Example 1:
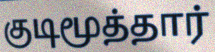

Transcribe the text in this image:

குடிமூத்தார்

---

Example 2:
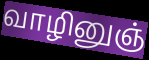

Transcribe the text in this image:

வாழினுஞ்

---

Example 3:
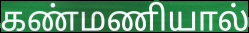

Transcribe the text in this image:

கண்மணியால்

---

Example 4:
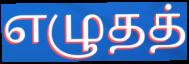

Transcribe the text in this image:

எழுதத்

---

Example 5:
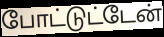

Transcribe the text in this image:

போட்டுட்டேன்